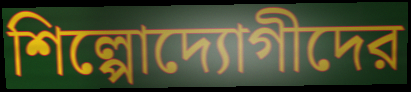
শিল্পোদ্যোগীদের